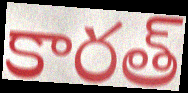
కారత్